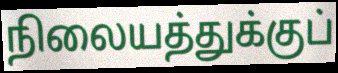
நிலையத்துக்குப்